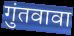
गुंतवावा